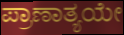
ಪ್ರಾಣಾತ್ಯಯೇ